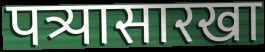
पत्र्यासारखा